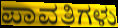
ಪಾವತಿಗಳು